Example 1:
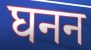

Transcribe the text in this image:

घनन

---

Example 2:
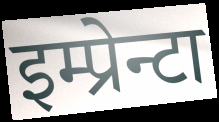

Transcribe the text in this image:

इम्प्रेन्टा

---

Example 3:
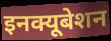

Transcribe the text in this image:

इनक्यूबेशन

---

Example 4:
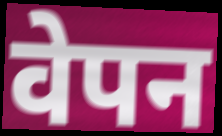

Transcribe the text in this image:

वेपन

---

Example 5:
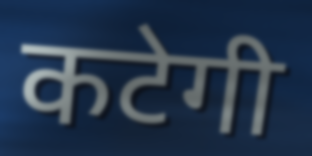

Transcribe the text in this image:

कटेगी